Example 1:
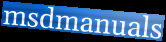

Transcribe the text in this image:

msdmanuals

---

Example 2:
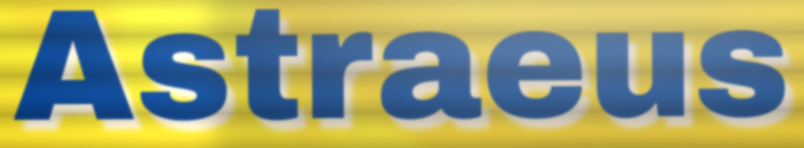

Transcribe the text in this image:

Astraeus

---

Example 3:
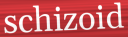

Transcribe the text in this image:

schizoid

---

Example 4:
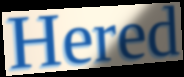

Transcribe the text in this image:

Hered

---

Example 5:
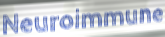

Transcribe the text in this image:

Neuroimmune